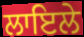
ਲਾਇਲੇ